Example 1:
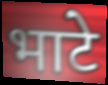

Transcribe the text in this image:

भाटे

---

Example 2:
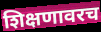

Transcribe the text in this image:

शिक्षणावरच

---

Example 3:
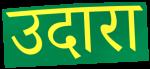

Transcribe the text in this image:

उदारा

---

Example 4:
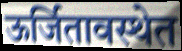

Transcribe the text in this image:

ऊर्जितावस्थेत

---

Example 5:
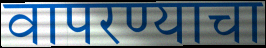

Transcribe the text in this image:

वापरण्याचा